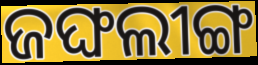
ଜଙ୍ଘଲୀଙ୍ଗ